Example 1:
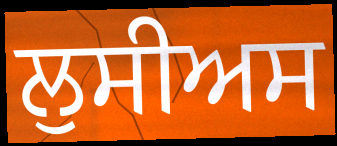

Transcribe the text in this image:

ਲੁਸੀਅਸ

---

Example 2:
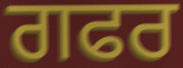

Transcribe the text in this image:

ਗਫਰ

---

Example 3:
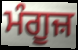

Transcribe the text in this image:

ਮੰਗੂਜ਼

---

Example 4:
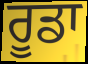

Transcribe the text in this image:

ਰੂਡਾ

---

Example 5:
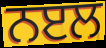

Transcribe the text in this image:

ਨੲਲ